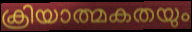
ക്രിയാത്മകതയും